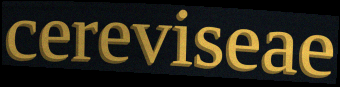
cereviseae